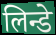
लिन्डे